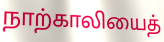
நாற்காலியைத்